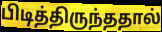
பிடித்திருந்ததால்